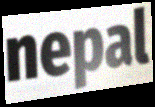
nepal